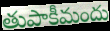
తుపాకీమందు